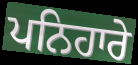
ਪਨਿਹਾਰੇ